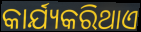
କାର୍ଯ୍ୟକରିଥାଏ